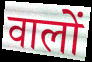
वालों